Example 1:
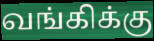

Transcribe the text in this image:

வங்கிக்கு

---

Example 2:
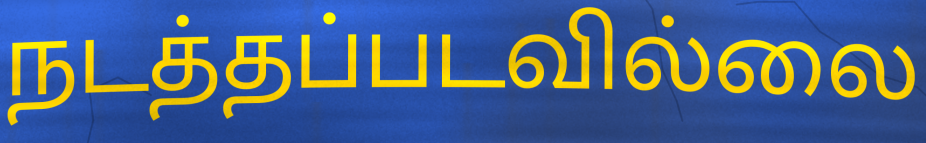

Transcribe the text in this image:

நடத்தப்படவில்லை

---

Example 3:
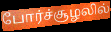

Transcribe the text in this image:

போர்ச்சூழலில்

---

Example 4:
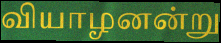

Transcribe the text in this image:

வியாழனன்று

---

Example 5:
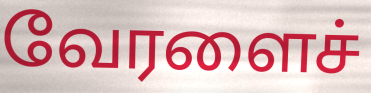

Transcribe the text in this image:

வேரளைச்